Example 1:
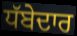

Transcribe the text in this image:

ਧੱਬੇਦਾਰ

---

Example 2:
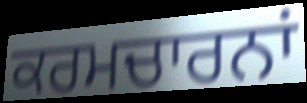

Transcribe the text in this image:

ਕਰਮਚਾਰਨਾਂ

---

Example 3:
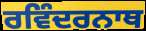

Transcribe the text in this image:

ਰਵਿੰਦਰਨਾਥ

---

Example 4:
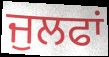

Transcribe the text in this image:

ਜੁਲਫਾਂ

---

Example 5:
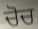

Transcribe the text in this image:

ਚੋਚ